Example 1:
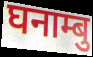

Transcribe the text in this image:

घनाम्बु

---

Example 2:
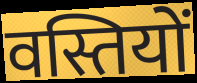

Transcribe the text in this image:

वस्तियों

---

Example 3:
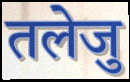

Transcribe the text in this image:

तलेजु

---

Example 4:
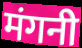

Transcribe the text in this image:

मंगनी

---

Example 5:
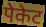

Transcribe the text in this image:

पेकेट